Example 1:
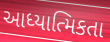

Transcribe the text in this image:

આધ્યાત્મિકતા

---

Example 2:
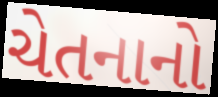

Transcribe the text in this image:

ચેતનાનો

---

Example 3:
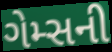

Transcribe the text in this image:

ગેમ્સની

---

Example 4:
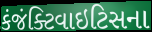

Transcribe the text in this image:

કંજંક્ટિવાઇટિસના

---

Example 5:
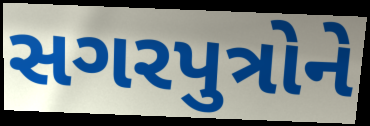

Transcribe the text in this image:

સગરપુત્રોને